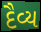
દૈવ્ય